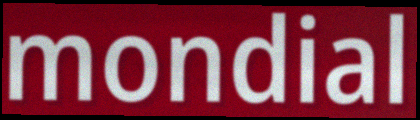
mondial